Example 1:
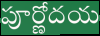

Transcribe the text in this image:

పూర్ణోదయ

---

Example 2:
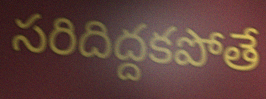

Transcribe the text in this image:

సరిదిద్దకపోతే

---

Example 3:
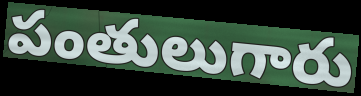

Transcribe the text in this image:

పంతులుగారు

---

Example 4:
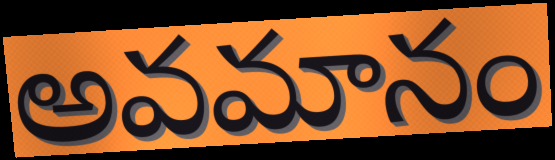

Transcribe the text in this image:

అవమానం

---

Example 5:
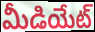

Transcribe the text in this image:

మీడియేట్